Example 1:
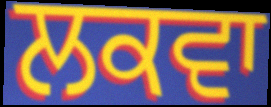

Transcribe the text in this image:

ਲਕਵਾ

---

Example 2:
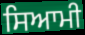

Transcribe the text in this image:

ਸਿਆਮੀ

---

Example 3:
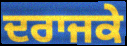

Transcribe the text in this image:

ਦਰਾਜਕੇ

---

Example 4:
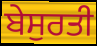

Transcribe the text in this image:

ਬੇਸੁਰਤੀ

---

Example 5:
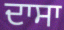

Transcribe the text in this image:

ਦਾਸਾ